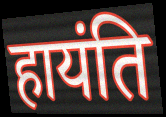
हायंति